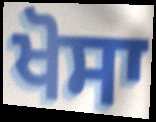
ਖੋਸਾ